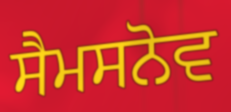
ਸੈਮਸਨੋਵ